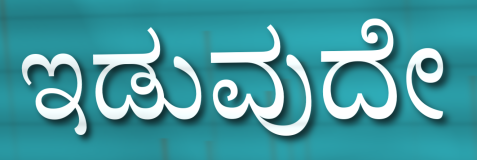
ಇಡುವುದೇ